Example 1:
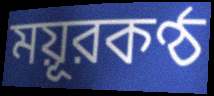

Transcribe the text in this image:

ময়ূরকণ্ঠ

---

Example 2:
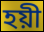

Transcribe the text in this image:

হয়ী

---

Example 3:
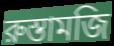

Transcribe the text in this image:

রুস্তামজি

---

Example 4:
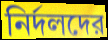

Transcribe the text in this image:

নির্দলদের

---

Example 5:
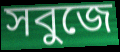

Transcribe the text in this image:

সবুজে